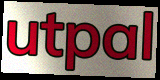
utpal